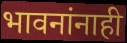
भावनांनाही